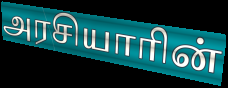
அரசியாரின்